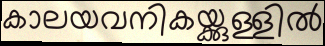
കാലയവനികയ്ക്കുള്ളിൽ